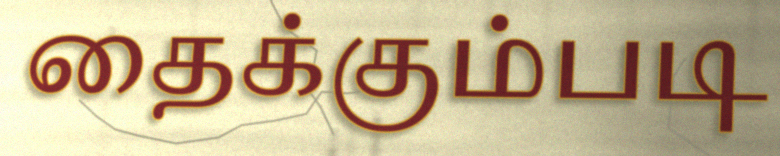
தைக்கும்படி